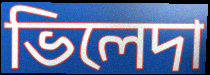
ভিলেদা